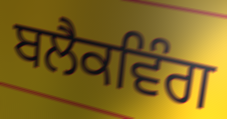
ਬਲੈਕਵਿੰਗ